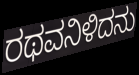
ರಥವನಿಳಿದನು